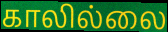
காலில்லை